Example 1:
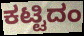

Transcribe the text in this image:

ಕಟ್ಟಿದಂ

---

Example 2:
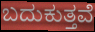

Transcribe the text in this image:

ಬದುಕುತ್ತವೆ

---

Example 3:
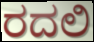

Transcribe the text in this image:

ರದಲಿ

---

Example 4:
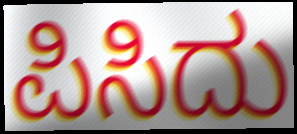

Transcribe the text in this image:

ಪಿಸಿದು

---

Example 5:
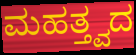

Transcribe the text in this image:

ಮಹತ್ತ್ವದ